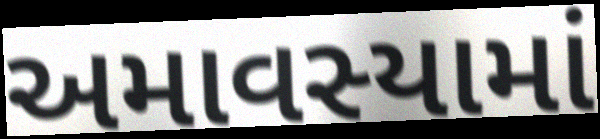
અમાવસ્યામાં